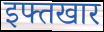
इफ्तखार